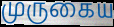
முருகைய